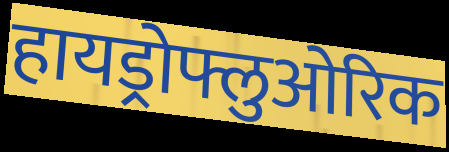
हायड्रोफ्लुओरिक